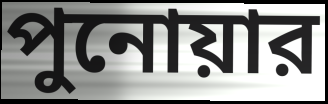
পুনোয়ার